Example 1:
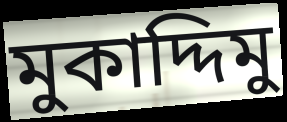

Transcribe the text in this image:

মুকাদ্দিমু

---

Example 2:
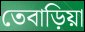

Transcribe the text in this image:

তেবাড়িয়া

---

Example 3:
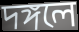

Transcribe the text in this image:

দঙ্গলে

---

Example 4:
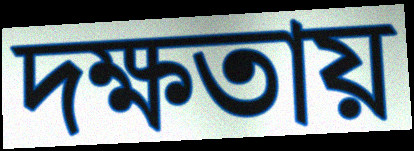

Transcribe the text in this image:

দক্ষতায়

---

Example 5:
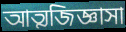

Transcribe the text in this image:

আত্মজিজ্ঞাসা